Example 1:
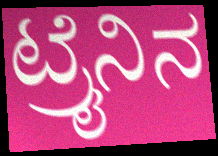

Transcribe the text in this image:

ಟ್ರೈನಿನ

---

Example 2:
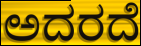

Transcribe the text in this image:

ಅದರದೆ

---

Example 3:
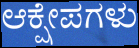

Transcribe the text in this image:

ಆಕ್ಷೇಪಗಳು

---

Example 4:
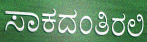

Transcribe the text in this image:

ಸಾಕದಂತಿರಲಿ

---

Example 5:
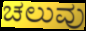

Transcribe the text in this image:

ಚಲುವು